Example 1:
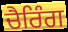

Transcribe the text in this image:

ਚੈਰਿੰਗ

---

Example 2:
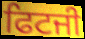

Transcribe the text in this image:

ਫਿਟਜੀ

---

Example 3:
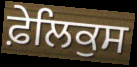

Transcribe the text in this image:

ਫ਼ੇਲਿਕੁਸ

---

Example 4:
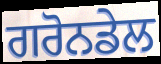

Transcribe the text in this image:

ਗਰੋਨਡੇਲ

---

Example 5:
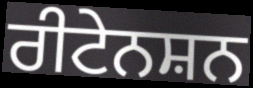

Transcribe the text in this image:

ਰੀਟੇਨਸ਼ਨ